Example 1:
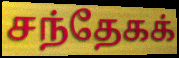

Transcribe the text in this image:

சந்தேகக்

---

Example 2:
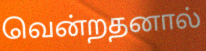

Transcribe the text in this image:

வென்றதனால்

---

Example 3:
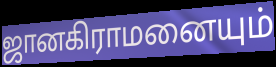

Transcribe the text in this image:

ஜானகிராமனையும்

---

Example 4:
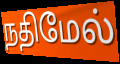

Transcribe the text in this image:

நதிமேல்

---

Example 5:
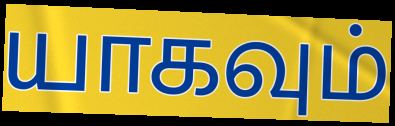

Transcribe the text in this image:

யாகவும்